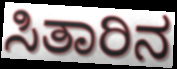
ಸಿತಾರಿನ